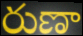
రుణా